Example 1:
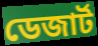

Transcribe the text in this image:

ডেজাৰ্ট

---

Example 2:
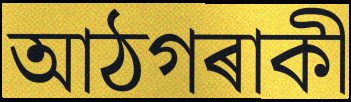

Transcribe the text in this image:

আঠগৰাকী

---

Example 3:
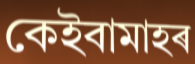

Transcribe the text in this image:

কেইবামাহৰ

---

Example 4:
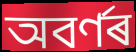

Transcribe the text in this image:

অবৰ্ণৰ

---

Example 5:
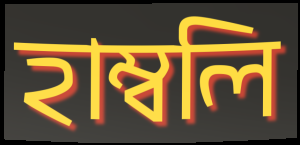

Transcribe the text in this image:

হাম্বলি